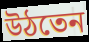
উঠতেন